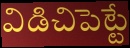
విడిచిపెట్టే